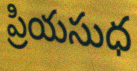
ప్రియసుధ